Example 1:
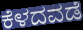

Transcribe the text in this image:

ಕೆಳದವಡೆ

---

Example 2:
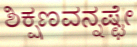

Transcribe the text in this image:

ಶಿಕ್ಷಣವನ್ನಷ್ಟೇ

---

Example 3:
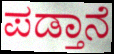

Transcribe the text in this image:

ಪಡ್ತಾನೆ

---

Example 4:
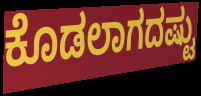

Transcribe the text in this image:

ಕೊಡಲಾಗದಷ್ಟು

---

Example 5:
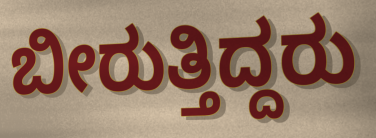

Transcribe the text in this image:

ಬೀರುತ್ತಿದ್ದರು